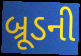
બ્રૂડની